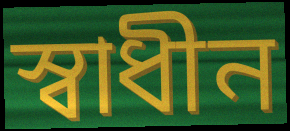
স্বাধীন